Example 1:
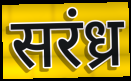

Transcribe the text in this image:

सरंध्र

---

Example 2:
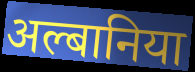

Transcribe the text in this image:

अल्बानिया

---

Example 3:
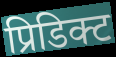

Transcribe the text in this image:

प्रिडिक्ट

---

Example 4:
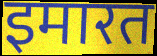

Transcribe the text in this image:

इमारत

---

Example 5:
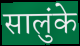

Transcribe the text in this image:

सालुंके